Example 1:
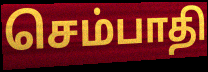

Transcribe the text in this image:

செம்பாதி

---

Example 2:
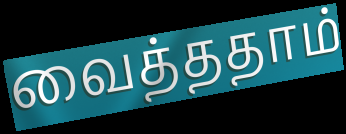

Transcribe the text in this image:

வைத்ததாம்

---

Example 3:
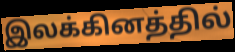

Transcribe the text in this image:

இலக்கினத்தில்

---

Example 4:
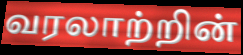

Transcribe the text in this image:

வரலாற்றின்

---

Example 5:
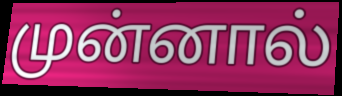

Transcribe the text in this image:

முன்னால்